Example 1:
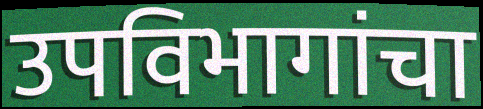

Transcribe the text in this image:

उपविभागांचा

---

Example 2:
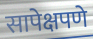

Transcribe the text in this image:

सापेक्षपणे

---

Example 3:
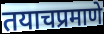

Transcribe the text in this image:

तयाचप्रमाणे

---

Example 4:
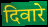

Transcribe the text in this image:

दिवारे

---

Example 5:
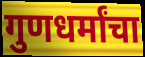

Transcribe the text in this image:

गुणधर्मांचा